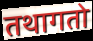
तथागतो